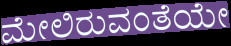
ಮೇಲಿರುವಂತೆಯೇ